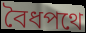
বৈধপথে